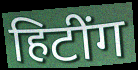
हिटींग